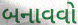
બનાવવો